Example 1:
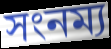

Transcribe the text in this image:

সংনম্য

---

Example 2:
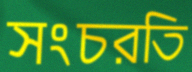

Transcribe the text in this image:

সংচরতি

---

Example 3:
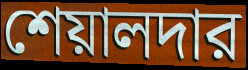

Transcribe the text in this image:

শেয়ালদার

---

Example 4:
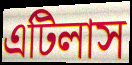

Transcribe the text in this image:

এটিলাস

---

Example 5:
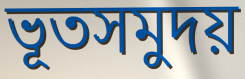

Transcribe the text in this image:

ভূতসমুদয়